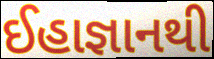
ઈહાજ્ઞાનથી